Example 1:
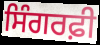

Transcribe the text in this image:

ਸਿੰਗਰਫ਼ੀ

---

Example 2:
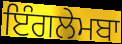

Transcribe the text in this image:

ਇੰਗਲੇਮਬਾ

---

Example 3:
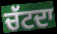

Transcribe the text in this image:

ਚੱਟਦਾ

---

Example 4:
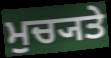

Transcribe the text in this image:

ਮੁਚ੍ਯਤੇ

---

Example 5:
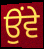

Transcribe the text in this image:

ਉੰਵੇ